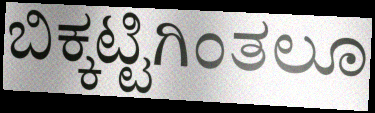
ಬಿಕ್ಕಟ್ಟಿಗಿಂತಲೂ